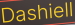
Dashiell